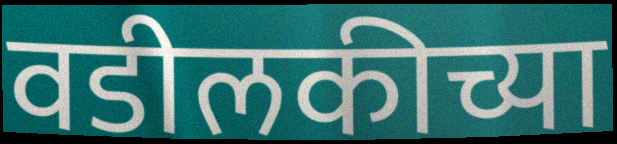
वडीलकीच्या